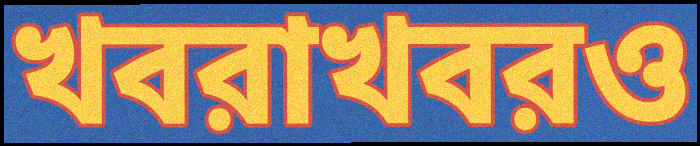
খবরাখবরও